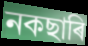
নকছাৰি